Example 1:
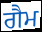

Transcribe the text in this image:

ਗੈਮ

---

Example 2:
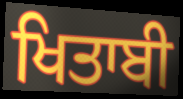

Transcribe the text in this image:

ਖਿਤਾਬੀ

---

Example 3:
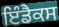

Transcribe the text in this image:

ਇੰਡੈਕਸ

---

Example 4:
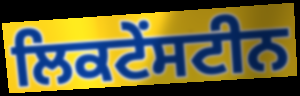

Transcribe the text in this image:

ਲਿਕਟੇਂਸਟੀਨ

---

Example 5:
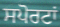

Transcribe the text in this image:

ਸਪੋਰਟਾਂ